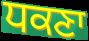
ਧਕਣਾ